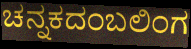
ಚನ್ನಕದಂಬಲಿಂಗ